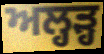
ਅਲ੍ਹੜ੍ਹ